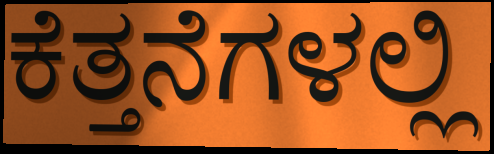
ಕೆತ್ತನೆಗಳಲ್ಲಿ